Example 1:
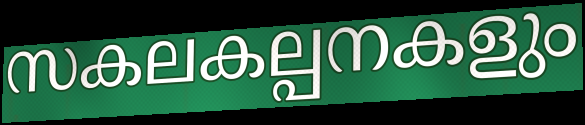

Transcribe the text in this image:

സകലകല്പനകളും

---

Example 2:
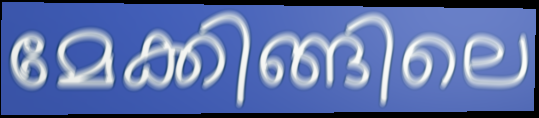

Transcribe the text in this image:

മേക്കിങ്ങിലെ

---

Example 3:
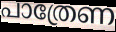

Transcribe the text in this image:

പാത്രേണ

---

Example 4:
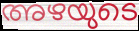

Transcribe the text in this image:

അഴയുടെ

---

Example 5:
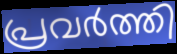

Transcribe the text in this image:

പ്രവർത്തി